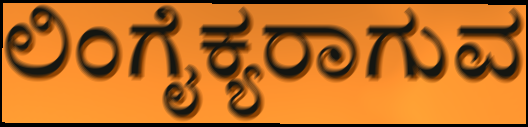
ಲಿಂಗೈಕ್ಯರಾಗುವ